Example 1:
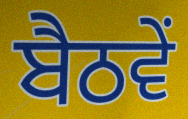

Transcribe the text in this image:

ਬੈਠਵੇਂ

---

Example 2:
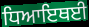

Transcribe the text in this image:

ਧਿਆਇਥਈ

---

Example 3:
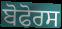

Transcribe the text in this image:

ਬੋਫੋਰਸ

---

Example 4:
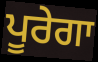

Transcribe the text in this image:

ਪੂਰੇਗਾ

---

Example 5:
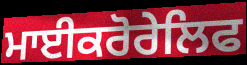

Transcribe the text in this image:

ਮਾਈਕਰੋਰੇਲਿਫ